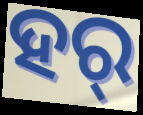
ହର୍